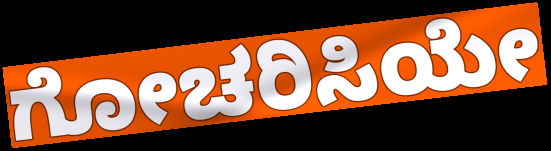
ಗೋಚರಿಸಿಯೇ